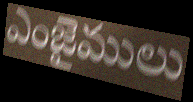
ఎంజైములు